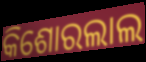
କିଶୋରଲାଲ